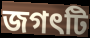
জগৎটি